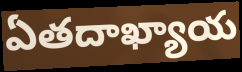
ఏతదాఖ్యాయ